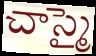
చాస్మై